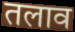
तलाव